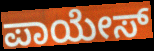
ಪಾಯೇಸ್